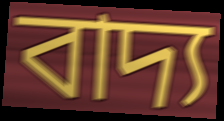
বাদ্য